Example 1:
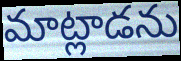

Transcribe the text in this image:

మాట్లాడను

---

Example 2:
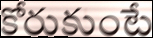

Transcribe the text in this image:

కోరుకుంటే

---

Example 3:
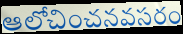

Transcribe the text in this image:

ఆలోచించనవసరం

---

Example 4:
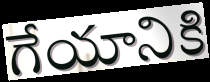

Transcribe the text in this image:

గేయానికి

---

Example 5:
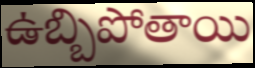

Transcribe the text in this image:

ఉబ్బిపోతాయి